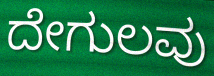
ದೇಗುಲವು